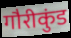
गौरीकुंड